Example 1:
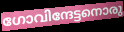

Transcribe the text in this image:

ഗോവിന്ദേട്ടനൊരു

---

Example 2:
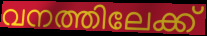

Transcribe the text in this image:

വനത്തിലേക്ക്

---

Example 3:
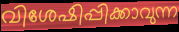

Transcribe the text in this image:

വിശേഷിപ്പിക്കാവുന്ന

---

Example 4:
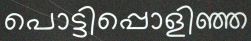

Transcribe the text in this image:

പൊട്ടിപ്പൊളിഞ്ഞ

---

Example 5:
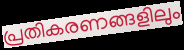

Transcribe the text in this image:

പ്രതികരണങ്ങളിലും